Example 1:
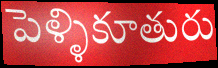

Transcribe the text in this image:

పెళ్ళికూతురు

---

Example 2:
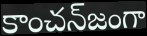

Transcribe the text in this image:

కాంచన్‌జంగా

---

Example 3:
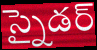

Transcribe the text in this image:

స్నైడర్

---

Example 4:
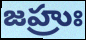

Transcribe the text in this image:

జహ్రుః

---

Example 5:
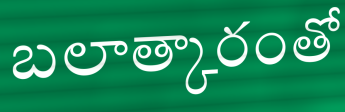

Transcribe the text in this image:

బలాత్కారంతో